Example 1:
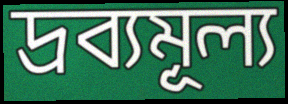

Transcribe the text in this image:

দ্রব্যমূল্য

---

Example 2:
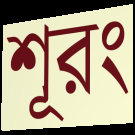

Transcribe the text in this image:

শূরং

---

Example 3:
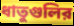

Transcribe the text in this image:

ধাতুগুলির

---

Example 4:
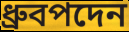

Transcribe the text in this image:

ধ্রুবপদেন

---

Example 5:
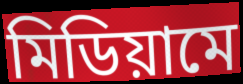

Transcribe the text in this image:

মিডিয়ামে